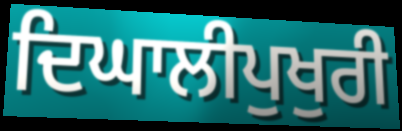
ਦਿਘਾਲੀਪੁਖੁਰੀ